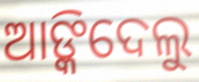
ଆଙ୍କିଦେଲୁ